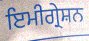
ਇਮੀਗ੍ਰੇਸ਼ਨ